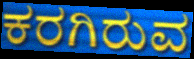
ಕರಗಿರುವ